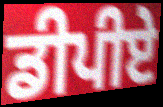
ਡੀਪੀਏ